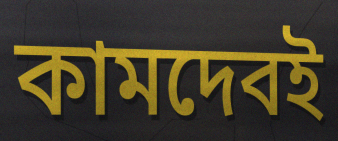
কামদেবই